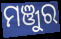
ମଞ୍ଜୁର